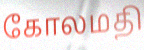
கோலமதி